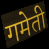
गमेती